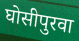
घोसीपुरवा